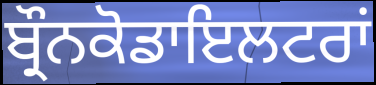
ਬ੍ਰੌਨਕੋਡਾਇਲਟਰਾਂ